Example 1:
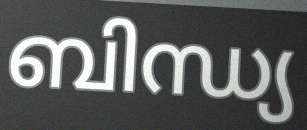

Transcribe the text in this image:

ബിന്ധ്യ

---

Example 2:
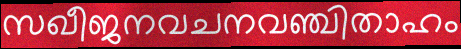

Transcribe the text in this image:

സഖീജനവചനവഞ്ചിതാഹം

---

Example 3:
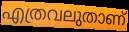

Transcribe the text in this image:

എത്രവലുതാണ്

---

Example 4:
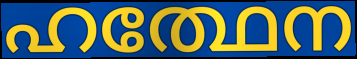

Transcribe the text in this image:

ഹത്ഥേന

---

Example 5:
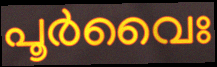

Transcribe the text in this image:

പൂർവൈഃ